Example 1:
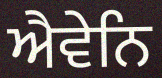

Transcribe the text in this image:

ਐਵੇਨਿ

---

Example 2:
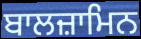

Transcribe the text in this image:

ਬਾਲਜ਼ਾਮਿਨ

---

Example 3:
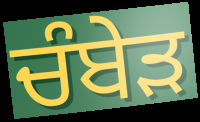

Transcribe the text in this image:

ਚੰਬੇੜ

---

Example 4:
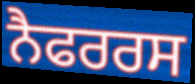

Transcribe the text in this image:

ਨੈਫਰਰਸ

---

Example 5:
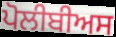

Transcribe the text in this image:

ਪੋਲੀਬੀਅਸ